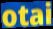
otai